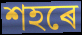
শহৰে